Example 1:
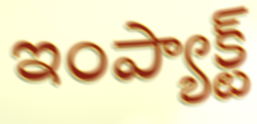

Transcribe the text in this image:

ఇంప్యాక్ట్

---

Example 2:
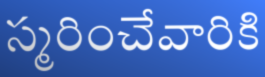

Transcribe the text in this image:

స్మరించేవారికి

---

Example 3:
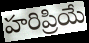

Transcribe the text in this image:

హరిప్రియే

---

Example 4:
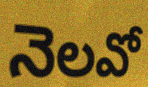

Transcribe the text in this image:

నెలవో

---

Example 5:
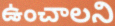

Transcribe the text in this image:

ఉంచాలని